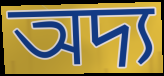
অদ্য